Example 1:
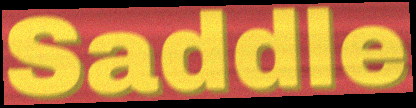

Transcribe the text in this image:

Saddle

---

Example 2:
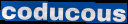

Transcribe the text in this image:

coducous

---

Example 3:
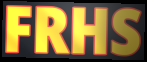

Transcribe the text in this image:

FRHS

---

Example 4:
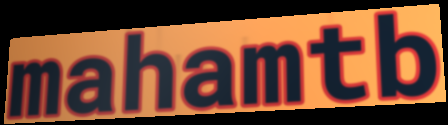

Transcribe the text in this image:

mahamtb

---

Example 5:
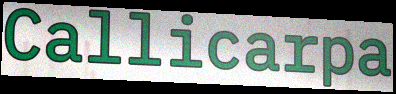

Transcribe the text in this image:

Callicarpa